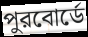
পুরবোর্ডে